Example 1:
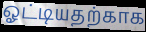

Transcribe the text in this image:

ஓட்டியதற்காக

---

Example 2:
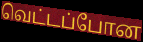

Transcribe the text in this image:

வெட்டப்போன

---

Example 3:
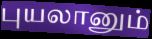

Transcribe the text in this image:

புயலானும்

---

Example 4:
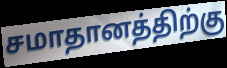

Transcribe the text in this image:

சமாதானத்திற்கு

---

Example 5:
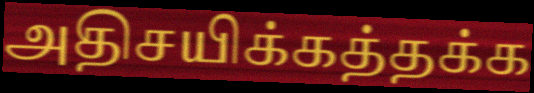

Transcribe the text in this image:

அதிசயிக்கத்தக்க